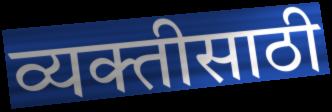
व्यक्तीसाठी